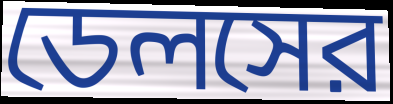
ডেলসের